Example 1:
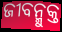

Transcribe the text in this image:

ଜୀବନ୍ମୁକ୍ତ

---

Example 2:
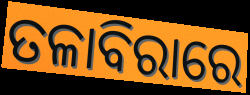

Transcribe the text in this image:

ତଳାବିରାରେ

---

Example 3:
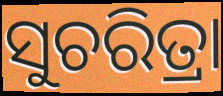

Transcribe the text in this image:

ସୁଚରିତ୍ରା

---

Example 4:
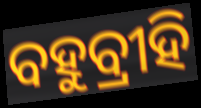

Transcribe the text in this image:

ବହୁବ୍ରୀହି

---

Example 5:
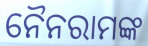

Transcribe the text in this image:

ନୈନରାମଙ୍କ